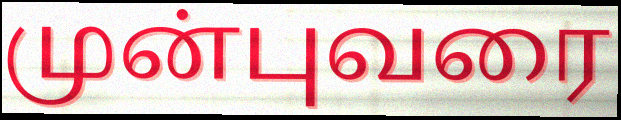
முன்புவரை